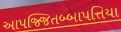
આપજ્જિતબ્બાપત્તિયા